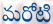
మరోటి